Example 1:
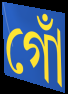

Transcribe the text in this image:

গোঁ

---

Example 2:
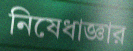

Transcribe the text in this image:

নিষেধাজ্ঞার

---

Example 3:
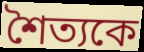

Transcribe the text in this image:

শৈত্যকে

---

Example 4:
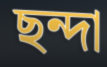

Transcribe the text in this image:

ছন্দা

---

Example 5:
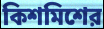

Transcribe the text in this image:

কিশমিশের